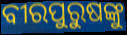
ବୀରପୁରୁଷଙ୍କୁ